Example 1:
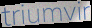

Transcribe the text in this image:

triumvir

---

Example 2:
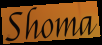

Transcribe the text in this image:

Shoma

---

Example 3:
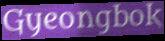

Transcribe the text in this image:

Gyeongbok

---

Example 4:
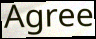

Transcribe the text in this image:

Agree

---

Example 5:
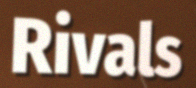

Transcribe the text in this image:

Rivals